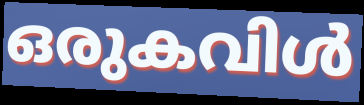
ഒരുകവിൾ